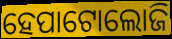
ହେପାଟୋଲୋଜି